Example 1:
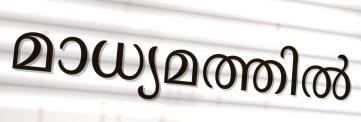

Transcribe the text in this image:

മാധ്യമത്തിൽ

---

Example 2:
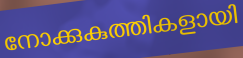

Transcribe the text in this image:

നോക്കുകുത്തികളായി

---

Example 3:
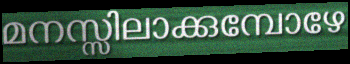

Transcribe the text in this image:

മനസ്സിലാക്കുമ്പോഴേ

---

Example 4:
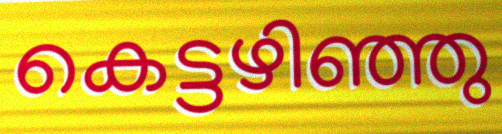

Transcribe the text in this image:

കെട്ടഴിഞ്ഞു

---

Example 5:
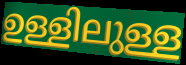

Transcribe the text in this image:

ഉള്ളിലുള്ള